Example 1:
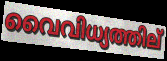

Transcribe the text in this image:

വൈവിധ്യത്തില്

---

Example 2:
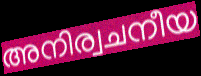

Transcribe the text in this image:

അനിര്വചനീയ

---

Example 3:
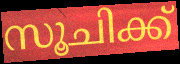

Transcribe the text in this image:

സൂചിക്ക്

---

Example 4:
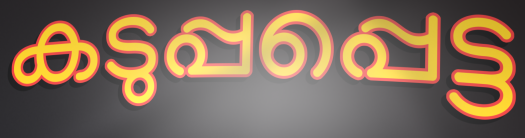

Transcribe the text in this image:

കടുപ്പപ്പെട്ട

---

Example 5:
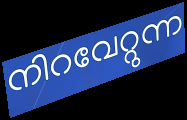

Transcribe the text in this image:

നിറവേറ്റുന്ന